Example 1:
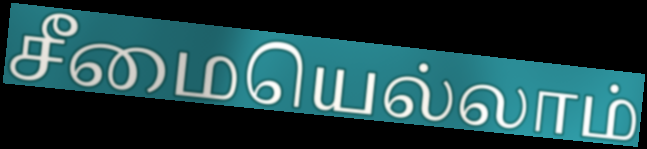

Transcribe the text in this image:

சீமையெல்லாம்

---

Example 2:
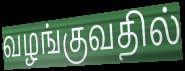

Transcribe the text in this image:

வழங்குவதில்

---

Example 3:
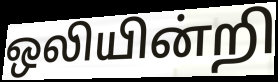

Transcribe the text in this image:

ஒலியின்றி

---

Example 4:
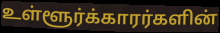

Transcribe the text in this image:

உள்ளூர்க்காரர்களின்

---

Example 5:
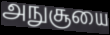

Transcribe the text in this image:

அநுசூயை